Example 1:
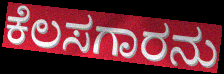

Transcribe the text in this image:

ಕೆಲಸಗಾರನು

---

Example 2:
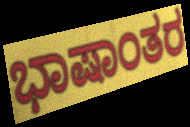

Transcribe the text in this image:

ಭಾಷಾಂತರ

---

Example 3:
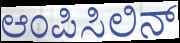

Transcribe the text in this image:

ಆಂಪಿಸಿಲಿನ್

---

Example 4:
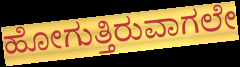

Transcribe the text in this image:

ಹೋಗುತ್ತಿರುವಾಗಲೇ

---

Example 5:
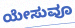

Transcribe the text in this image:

ಯೇಸುವೂ